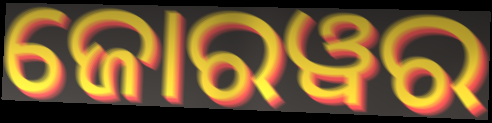
ଜୋରୱର